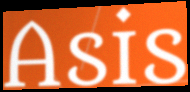
Asis